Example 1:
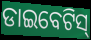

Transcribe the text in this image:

ଡାଇବେଟିସ୍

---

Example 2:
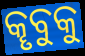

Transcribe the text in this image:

କୄବୁକୁ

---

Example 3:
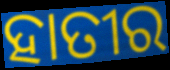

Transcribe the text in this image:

ହାତୀର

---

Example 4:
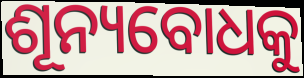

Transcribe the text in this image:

ଶୂନ୍ୟବୋଧକୁ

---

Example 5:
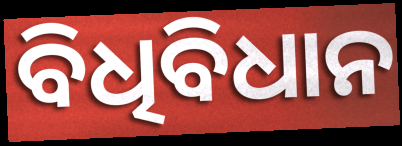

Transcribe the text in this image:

ବିଧିବିଧାନ